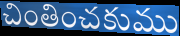
చింతించకుము